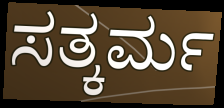
ಸತ್ಕರ್ಮ